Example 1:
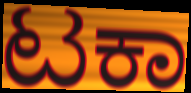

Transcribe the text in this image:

ಟಕಾ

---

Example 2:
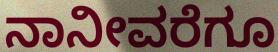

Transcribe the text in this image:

ನಾನೀವರೆಗೂ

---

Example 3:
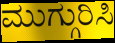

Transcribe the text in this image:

ಮುಗ್ಗುರಿಸಿ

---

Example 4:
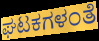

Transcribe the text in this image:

ಘಟಕಗಳಂತೆ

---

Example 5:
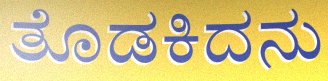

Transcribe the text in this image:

ತೊಡಕಿದನು